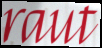
raut